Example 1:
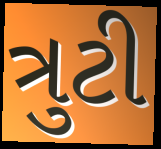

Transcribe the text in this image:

ત્રુટી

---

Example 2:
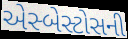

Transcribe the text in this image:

એસ્બેસ્ટોસની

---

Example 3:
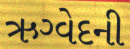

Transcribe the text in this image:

ઋગ્વેદની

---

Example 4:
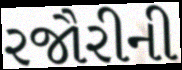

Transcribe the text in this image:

રજૌરીની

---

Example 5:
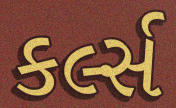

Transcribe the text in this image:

કર્લ્સ